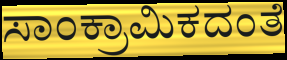
ಸಾಂಕ್ರಾಮಿಕದಂತೆ